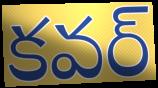
కవర్